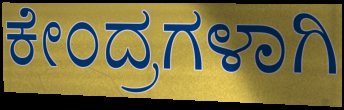
ಕೇಂದ್ರಗಳಾಗಿ